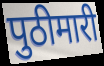
पुठीमारी